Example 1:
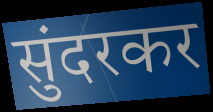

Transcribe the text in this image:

सुंदरकर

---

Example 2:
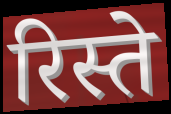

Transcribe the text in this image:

रिस्ते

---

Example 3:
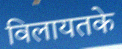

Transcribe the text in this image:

विलायतके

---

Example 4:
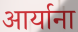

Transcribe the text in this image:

आर्याना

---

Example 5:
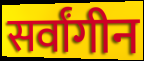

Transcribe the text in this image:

सर्वांगीन